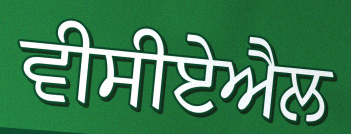
ਵੀਸੀਏਐਲ